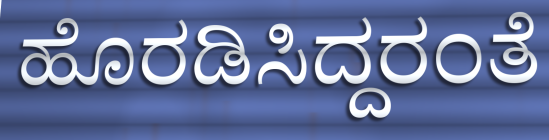
ಹೊರಡಿಸಿದ್ದರಂತೆ